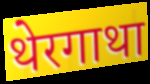
थेरगाथा